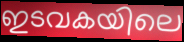
ഇടവകയിലെ